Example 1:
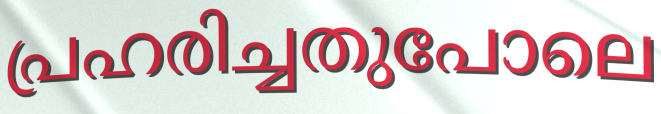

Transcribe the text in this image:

പ്രഹരിച്ചതുപോലെ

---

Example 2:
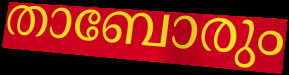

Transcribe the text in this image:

താബോരും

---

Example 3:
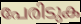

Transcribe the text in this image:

പേരിടുക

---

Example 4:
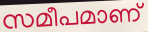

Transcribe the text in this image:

സമീപമാണ്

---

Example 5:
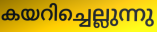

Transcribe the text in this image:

കയറിച്ചെല്ലുന്നു